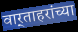
वार्ताहरांच्या